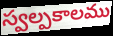
స్వల్పకాలము